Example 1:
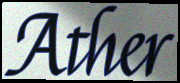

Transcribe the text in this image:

Ather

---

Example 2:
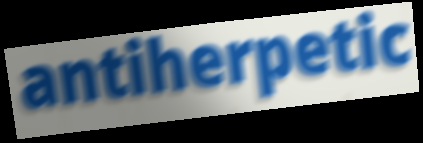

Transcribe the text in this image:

antiherpetic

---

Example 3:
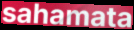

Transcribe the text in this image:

sahamata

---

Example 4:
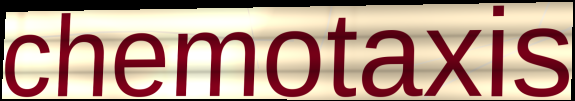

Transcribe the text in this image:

chemotaxis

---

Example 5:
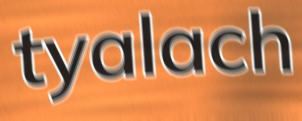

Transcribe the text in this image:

tyalach